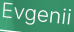
Evgenii